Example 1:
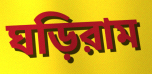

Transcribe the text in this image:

ঘড়িরাম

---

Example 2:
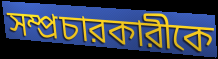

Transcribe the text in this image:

সম্প্রচারকারীকে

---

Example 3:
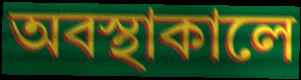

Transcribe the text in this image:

অবস্থাকালে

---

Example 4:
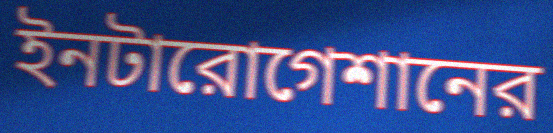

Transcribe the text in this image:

ইনটারোগেশানের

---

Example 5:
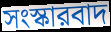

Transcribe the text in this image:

সংস্কারবাদ